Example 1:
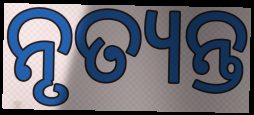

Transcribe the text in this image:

ନୃତ୍ୟନ୍ତ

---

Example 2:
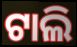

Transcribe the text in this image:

ଟାଲି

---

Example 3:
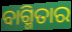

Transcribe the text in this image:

ବାଗ୍ମିତାର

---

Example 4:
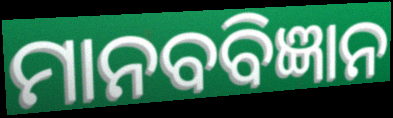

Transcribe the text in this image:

ମାନବବିଜ୍ଞାନ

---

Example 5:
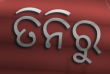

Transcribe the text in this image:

ତିନିରୁ